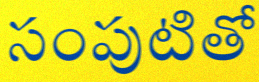
సంపుటితో